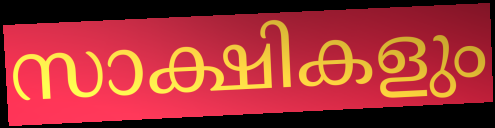
സാക്ഷികളും